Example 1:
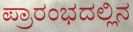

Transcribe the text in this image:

ಪ್ರಾರಂಭದಲ್ಲಿನ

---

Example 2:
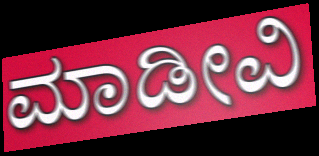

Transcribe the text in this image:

ಮಾಡೀವಿ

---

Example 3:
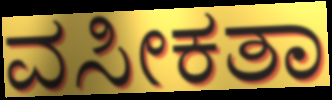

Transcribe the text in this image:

ವಸೀಕತಾ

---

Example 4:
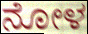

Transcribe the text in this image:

ನೋಳ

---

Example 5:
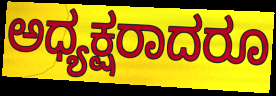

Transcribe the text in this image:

ಅಧ್ಯಕ್ಷರಾದರೂ